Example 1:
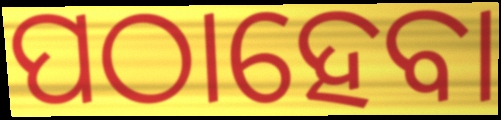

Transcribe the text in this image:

ପଠାହେବା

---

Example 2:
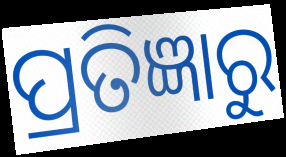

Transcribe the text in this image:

ପ୍ରତିଜ୍ଞାରୁ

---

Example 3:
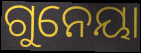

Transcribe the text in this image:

ଗୁନେୟା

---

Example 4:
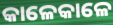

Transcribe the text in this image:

କାଳେକାଳେ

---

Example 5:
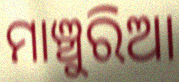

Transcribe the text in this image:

ମାଞ୍ଚୁରିଆ